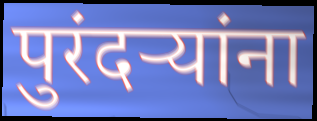
पुरंदऱ्यांना